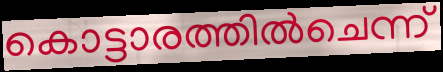
കൊട്ടാരത്തിൽചെന്ന്